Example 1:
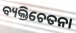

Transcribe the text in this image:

ବ୍ୟକ୍ତିଚେତନା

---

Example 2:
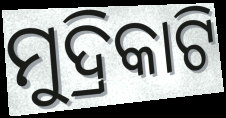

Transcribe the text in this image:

ମୁଦ୍ରିକାଟି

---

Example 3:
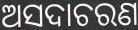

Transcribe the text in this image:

ଅସଦାଚରଣ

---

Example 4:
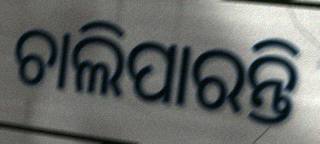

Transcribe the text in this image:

ଚାଲିପାରନ୍ତି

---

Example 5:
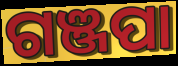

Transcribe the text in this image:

ଗଞ୍ଜପା